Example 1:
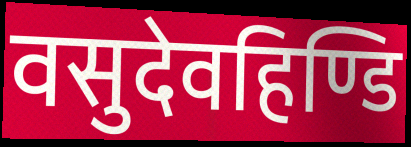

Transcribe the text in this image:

वसुदेवहिण्डि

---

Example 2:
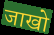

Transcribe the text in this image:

जाखो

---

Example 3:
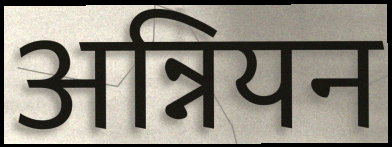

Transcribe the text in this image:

अन्नियन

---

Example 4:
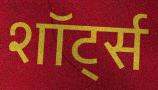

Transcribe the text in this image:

शॉर्ट्स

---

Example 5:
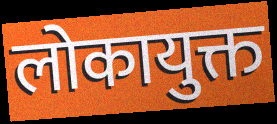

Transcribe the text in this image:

लोकायुक्त